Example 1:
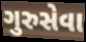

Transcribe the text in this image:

ગુરુસેવા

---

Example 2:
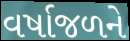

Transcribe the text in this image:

વર્ષાજળને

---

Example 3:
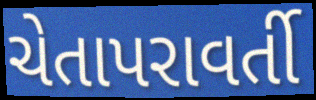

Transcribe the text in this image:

ચેતાપરાવર્તી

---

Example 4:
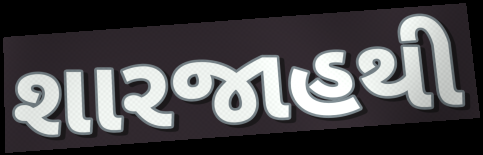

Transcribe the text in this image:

શારજાહથી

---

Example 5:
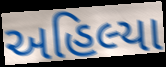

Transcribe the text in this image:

અહિલ્યા